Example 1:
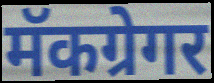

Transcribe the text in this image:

मॅकग्रेगर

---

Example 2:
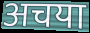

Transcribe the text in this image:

अचया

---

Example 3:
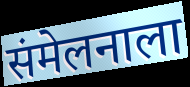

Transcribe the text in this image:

संमेलनाला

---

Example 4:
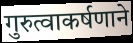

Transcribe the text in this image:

गुरुत्वाकर्षणाने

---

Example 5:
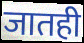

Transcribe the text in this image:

जातही